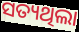
ସତ୍ୟଥିଲା